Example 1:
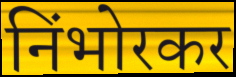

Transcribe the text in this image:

निंभोरकर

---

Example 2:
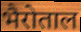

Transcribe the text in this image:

भैरोताल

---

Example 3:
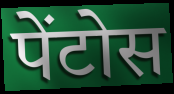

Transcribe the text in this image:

पेंटोस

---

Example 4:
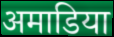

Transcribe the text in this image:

अमाडिया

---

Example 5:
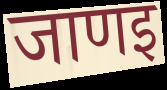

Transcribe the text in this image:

जाणइ